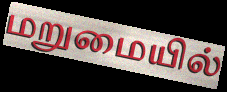
மறுமையில்